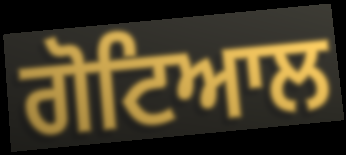
ਗੋਟਿਆਲ